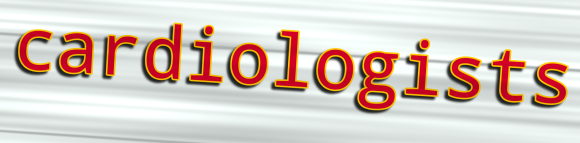
cardiologists